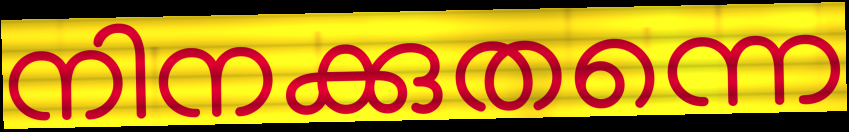
നിനക്കുതന്നെ